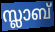
സ്ലാബ്